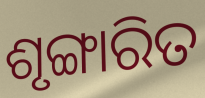
ଶୃଙ୍ଗାରିତ